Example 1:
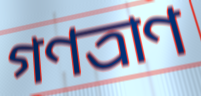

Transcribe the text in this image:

গণত্রাণ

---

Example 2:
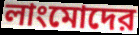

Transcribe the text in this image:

লাংমোদের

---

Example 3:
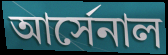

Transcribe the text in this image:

আর্সেনাল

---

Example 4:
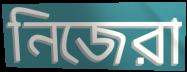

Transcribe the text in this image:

নিজেরা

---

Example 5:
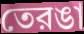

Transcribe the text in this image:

তেরঙা